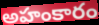
అహంకారం